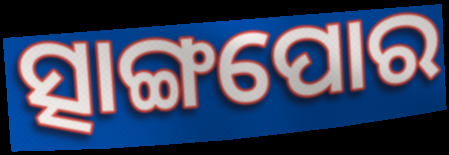
ତ୍ସାଙ୍ଗପୋର